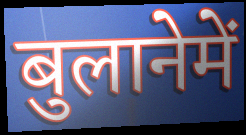
बुलानेमें